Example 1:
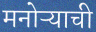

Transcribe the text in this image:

मनोऱ्याची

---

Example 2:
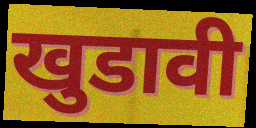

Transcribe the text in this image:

खुडावी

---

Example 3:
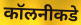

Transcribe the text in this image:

कॉलनीकडे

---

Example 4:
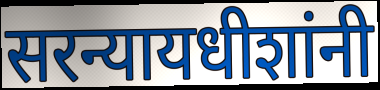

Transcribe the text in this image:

सरन्यायधीशांनी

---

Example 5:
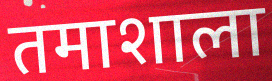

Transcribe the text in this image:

तमाशाला